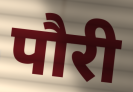
पौरी